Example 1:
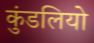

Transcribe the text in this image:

कुंडलियो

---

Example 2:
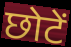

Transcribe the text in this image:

छोटें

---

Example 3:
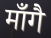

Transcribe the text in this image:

माँगै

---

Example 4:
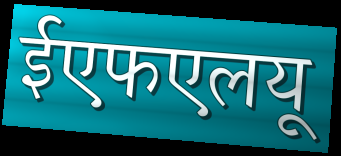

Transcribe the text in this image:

ईएफएलयू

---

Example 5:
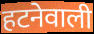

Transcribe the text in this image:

हटनेवाली